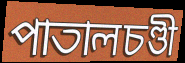
পাতালচণ্ডী